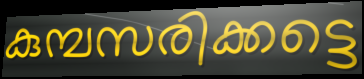
കുമ്പസരിക്കട്ടെ